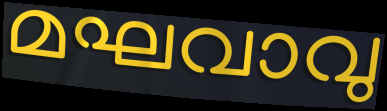
മഘവാവു